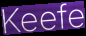
Keefe